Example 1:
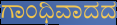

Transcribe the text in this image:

ಗಾಂಧಿವಾದದ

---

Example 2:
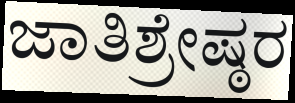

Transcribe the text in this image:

ಜಾತಿಶ್ರೇಷ್ಠರ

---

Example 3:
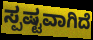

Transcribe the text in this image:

ಸ್ಪಷ್ಟವಾಗಿದೆ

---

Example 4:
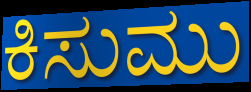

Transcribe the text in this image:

ಕಿಸುಮು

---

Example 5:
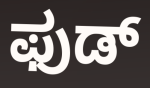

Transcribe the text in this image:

ಫುಡ್